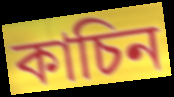
কাচিন